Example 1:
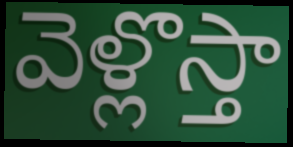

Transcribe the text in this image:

వెళ్లొస్తా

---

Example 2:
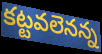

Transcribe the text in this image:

కట్టవలెనన్న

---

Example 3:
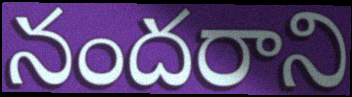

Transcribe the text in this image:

నందరాని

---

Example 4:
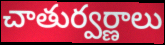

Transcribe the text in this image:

చాతుర్వర్ణాలు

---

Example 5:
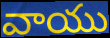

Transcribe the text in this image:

వాయు